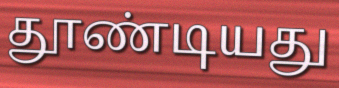
தூண்டியது